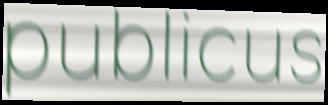
publicus